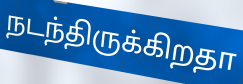
நடந்திருக்கிறதா